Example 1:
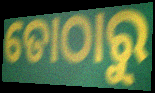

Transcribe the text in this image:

ତୋଠାରୁ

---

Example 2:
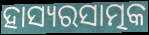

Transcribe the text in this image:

ହାସ୍ୟରସାତ୍ମକ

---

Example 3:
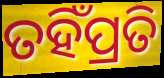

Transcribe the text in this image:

ତହିଁପ୍ରତି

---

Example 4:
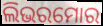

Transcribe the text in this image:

ଲିଭରମୋର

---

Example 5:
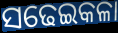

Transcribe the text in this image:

ସଢେଇକଳା